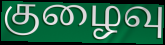
குழைவு